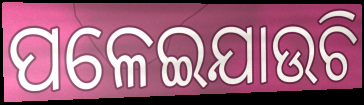
ପଳେଇଯାଉଚି